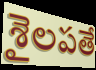
శైలపతే